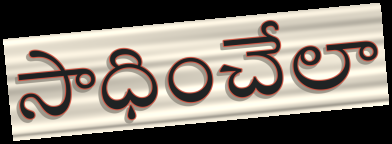
సాధించేలా